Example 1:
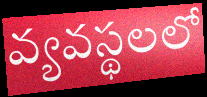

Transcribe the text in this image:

వ్యవస్థలలో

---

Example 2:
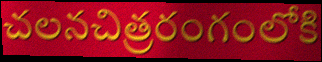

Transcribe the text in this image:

చలనచిత్రరంగంలోకి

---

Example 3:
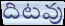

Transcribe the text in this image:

దిటవు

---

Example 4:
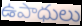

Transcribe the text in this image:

ఉపాధులు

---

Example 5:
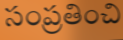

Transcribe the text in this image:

సంప్రతించి